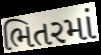
ભિતરમાં